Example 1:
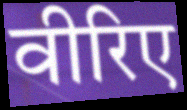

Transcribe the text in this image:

वीरिए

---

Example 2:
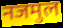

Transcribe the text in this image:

नजमुल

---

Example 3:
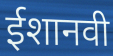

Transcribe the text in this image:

ईशानवी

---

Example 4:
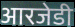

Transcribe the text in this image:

आरजेडी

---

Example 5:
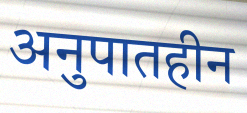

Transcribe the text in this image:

अनुपातहीन